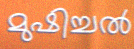
മുഷിച്ചൽ